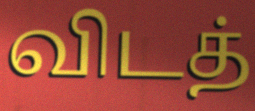
விடத்